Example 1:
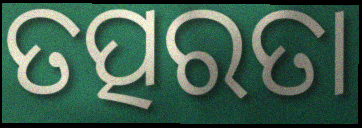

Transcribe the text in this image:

ତତ୍ପରତା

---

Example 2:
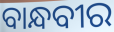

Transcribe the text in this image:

ବାନ୍ଧବୀର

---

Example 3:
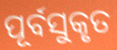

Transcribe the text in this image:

ପୂର୍ବସୁକୃତ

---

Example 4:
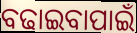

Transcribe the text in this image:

ବଢାଇବାପାଇଁ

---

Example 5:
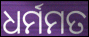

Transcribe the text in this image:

ଧର୍ମମତ